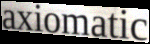
axiomatic